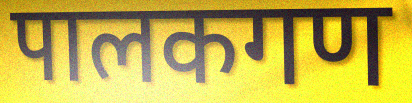
पालकगण